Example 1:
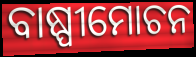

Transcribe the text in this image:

ବାଷ୍ପୀମୋଚନ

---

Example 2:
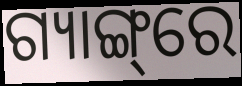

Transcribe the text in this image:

ଗ୍ୟାଙ୍ଗ୍‌ରେ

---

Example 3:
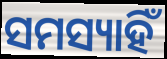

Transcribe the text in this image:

ସମସ୍ୟାହିଁ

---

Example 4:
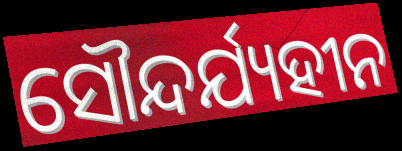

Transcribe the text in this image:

ସୌନ୍ଦର୍ଯ୍ୟହୀନ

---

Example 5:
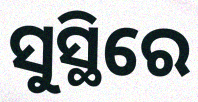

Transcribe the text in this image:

ସୁସ୍ଥିରେ